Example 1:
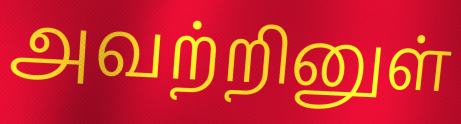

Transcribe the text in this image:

அவற்றினுள்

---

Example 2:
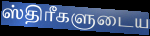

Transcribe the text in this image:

ஸ்திரீகளுடைய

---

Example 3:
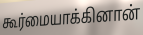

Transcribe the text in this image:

கூர்மையாக்கினான்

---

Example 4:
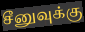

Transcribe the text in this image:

சீனுவுக்கு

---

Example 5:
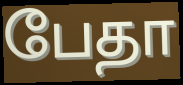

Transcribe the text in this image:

பேதா